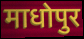
माधोपुर